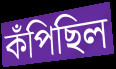
কঁপিছিল